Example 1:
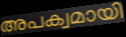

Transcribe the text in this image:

അപക്വമായി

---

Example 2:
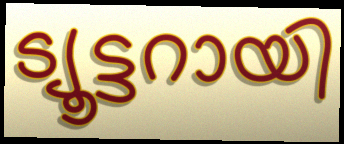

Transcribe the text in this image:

ട്യൂട്ടറായി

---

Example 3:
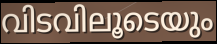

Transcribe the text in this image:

വിടവിലൂടെയും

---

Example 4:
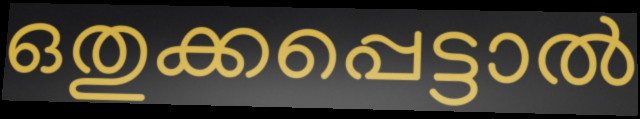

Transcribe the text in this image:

ഒതുക്കപ്പെട്ടാൽ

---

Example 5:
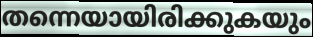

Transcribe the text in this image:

തന്നെയായിരിക്കുകയും